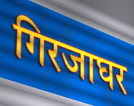
गिरजाघर